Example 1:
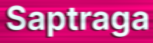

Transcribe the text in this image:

Saptraga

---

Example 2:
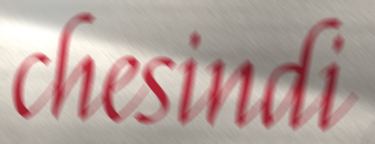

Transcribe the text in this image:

chesindi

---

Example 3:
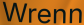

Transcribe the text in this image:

Wrenn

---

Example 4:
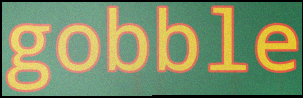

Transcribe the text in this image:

gobble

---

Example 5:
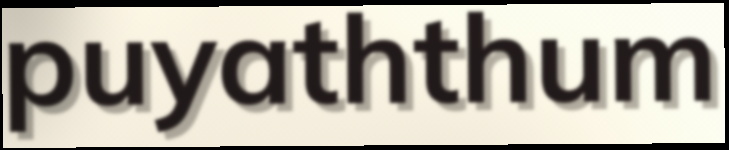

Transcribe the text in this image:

puyaththum